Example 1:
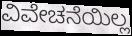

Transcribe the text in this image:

ವಿವೇಚನೆಯಿಲ್ಲ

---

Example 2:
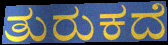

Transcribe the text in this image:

ತುರುಕದೆ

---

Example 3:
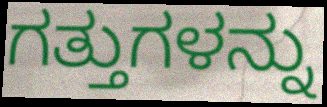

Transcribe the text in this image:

ಗತ್ತುಗಳನ್ನು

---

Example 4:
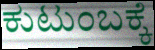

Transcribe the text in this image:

ಕುಟುಂಬಕ್ಕೆ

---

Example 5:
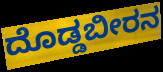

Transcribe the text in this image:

ದೊಡ್ಡಬೀರನ